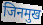
जिनमुख